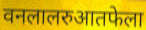
वनलालरुआतफेला